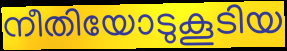
നീതിയോടുകൂടിയ